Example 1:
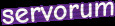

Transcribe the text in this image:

servorum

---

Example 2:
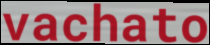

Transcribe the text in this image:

vachato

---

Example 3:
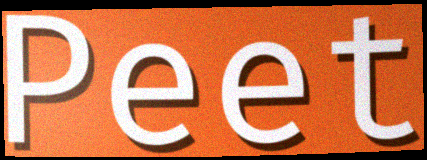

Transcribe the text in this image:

Peet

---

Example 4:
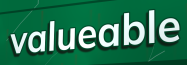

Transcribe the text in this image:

valueable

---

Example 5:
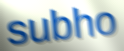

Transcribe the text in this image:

subho